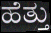
ಹೆತ್ತು